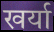
खर्या